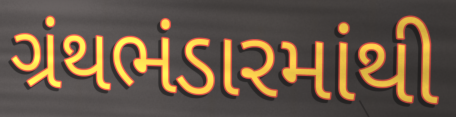
ગ્રંથભંડારમાંથી